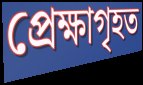
প্ৰেক্ষাগৃহত